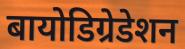
बायोडिग्रेडेशन